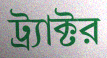
ট্র্যাক্টর